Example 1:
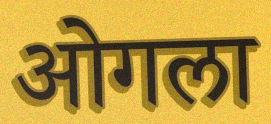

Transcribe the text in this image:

ओगला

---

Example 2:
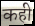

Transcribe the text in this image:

कही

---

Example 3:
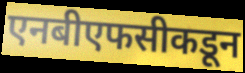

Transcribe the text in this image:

एनबीएफसीकडून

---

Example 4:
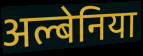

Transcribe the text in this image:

अल्बेनिया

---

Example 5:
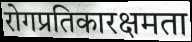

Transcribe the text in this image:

रोगप्रतिकारक्षमता